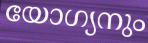
യോഗ്യനും